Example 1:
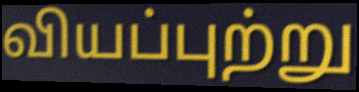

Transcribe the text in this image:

வியப்புற்று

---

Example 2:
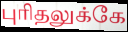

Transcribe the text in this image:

புரிதலுக்கே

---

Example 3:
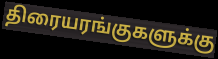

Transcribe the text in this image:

திரையரங்குகளுக்கு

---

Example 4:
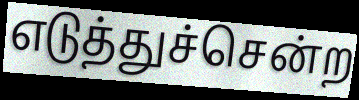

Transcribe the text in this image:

எடுத்துச்சென்ற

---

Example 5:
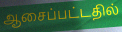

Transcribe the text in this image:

ஆசைப்பட்டதில்